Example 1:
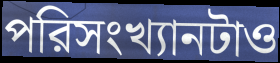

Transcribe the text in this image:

পরিসংখ্যানটাও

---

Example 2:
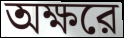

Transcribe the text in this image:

অক্ষরে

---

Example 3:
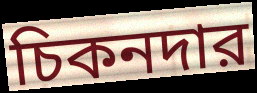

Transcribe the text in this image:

চিকনদার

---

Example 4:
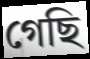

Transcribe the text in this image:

গেছি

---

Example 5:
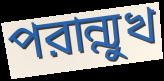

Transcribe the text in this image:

পরান্মুখ